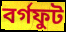
বর্গফুট